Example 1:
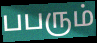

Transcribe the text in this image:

பபரும்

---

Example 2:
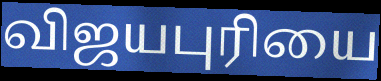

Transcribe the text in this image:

விஜயபுரியை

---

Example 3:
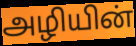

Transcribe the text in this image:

அழியின்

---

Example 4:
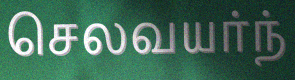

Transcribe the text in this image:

செலவயர்ந்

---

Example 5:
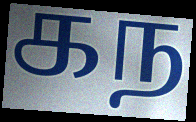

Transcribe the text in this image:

கந